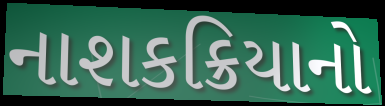
નાશકક્રિયાનો